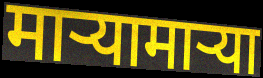
माऱ्यामाऱ्या